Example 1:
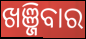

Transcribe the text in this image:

ଖଞ୍ଜିବାର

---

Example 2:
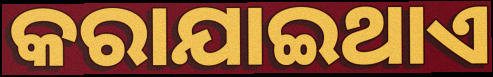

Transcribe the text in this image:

କରାଯାଇଥାଏ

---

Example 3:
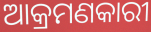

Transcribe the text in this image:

ଆକ୍ରମଣକାରୀ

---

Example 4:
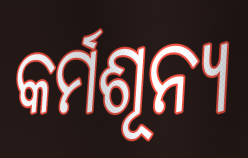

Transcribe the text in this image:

କର୍ମଶୂନ୍ୟ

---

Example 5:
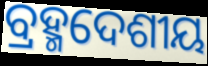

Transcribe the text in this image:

ବ୍ରହ୍ମଦେଶୀୟ